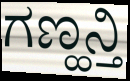
ಗಣ್ಹನ್ತಿ